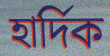
হার্দিক